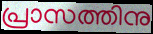
പ്രാസത്തിനു